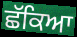
ਛੱਕਿਆ